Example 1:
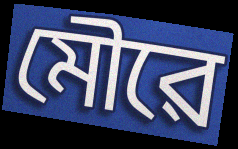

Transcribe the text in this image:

মৌৱে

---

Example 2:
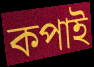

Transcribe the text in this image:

কপাই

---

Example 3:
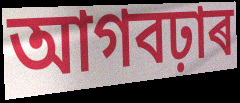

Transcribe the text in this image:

আগবঢ়াৰ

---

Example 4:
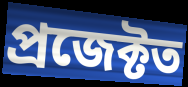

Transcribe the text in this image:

প্ৰজেক্টত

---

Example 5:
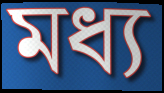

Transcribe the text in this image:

মধ্য